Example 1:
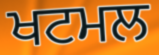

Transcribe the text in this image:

ਖਟਮਲ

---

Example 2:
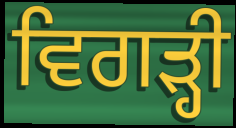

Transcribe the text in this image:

ਵਿਗੜ੍ਹੀ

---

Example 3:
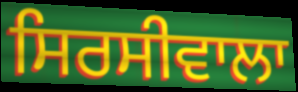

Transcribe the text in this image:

ਸਿਰਸੀਵਾਲਾ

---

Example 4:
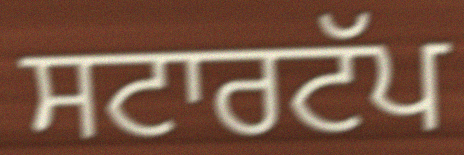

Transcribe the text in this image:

ਸਟਾਰਟੱਪ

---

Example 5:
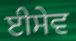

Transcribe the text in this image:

ਈਸੇਵ